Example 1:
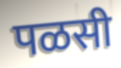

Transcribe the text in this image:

पळसी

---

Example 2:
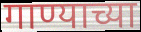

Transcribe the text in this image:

गाण्याच्या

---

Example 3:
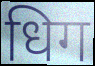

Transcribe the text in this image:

धिग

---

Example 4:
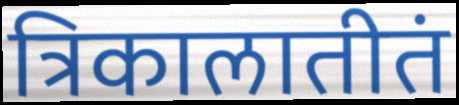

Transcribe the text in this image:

त्रिकालातीतं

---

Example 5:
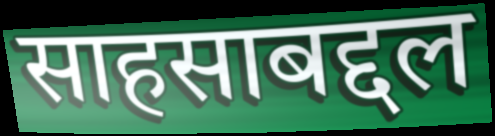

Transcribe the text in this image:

साहसाबद्दल